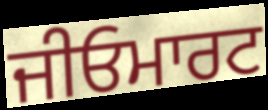
ਜੀਓਮਾਰਟ